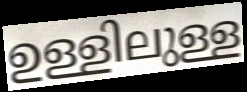
ഉള്ളിലുള്ള